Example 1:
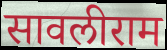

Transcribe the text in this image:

सावलीराम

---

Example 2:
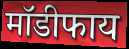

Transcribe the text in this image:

मॉडीफाय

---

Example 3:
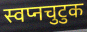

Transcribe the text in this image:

स्वप्नचुटुक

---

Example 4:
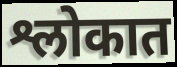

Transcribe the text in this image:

श्लोकात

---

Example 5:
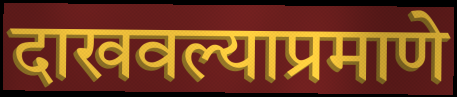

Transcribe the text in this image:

दाखवल्याप्रमाणे